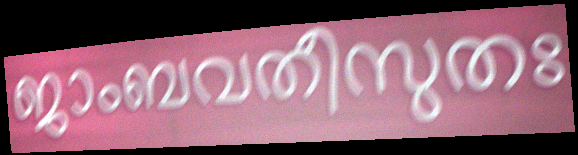
ജാംബവതീസുതഃ